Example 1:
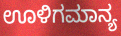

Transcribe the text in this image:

ಊಳಿಗಮಾನ್ಯ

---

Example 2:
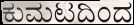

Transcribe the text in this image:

ಕುಮಟದಿಂದ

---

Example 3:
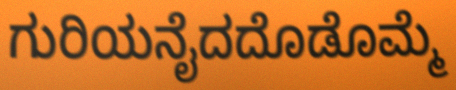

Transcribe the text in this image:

ಗುರಿಯನೈದದೊಡೊಮ್ಮೆ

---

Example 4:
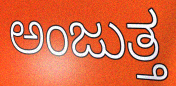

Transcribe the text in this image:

ಅಂಜುತ್ತ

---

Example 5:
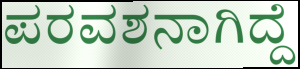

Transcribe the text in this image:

ಪರವಶನಾಗಿದ್ದೆ